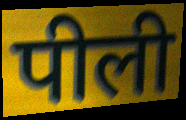
पीली